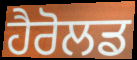
ਹੈਰੋਲਡ